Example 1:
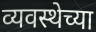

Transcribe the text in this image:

व्यवस्थेच्या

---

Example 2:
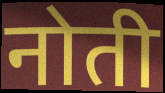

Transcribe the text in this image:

नोती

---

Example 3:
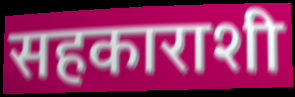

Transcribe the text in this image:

सहकाराशी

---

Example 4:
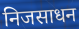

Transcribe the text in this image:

निजसाधन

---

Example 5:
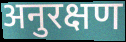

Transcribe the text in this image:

अनुरक्षण